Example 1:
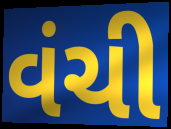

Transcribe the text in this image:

વંચી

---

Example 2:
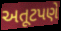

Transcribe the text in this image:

અતૂટપણે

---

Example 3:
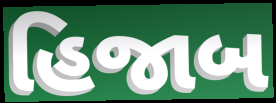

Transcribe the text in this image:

હિજાબ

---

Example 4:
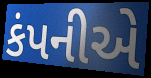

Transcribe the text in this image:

કંપનીએ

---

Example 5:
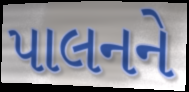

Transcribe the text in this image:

પાલનને